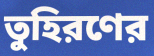
তুহিরণের